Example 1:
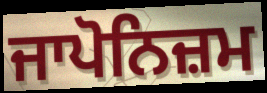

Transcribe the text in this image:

ਜਾਪੋਨਿਜ਼ਮ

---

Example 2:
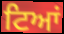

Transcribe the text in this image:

ਟਿਆਂ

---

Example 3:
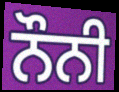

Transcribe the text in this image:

ਨੌਨੀ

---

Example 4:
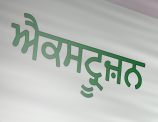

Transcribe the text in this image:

ਐਕਸਟ੍ਰੂਜ਼ਨ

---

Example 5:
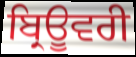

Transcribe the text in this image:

ਬ੍ਰਿਊਵਰੀ